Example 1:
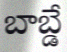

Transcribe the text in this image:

బాబ్డే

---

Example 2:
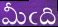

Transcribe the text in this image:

మీఁది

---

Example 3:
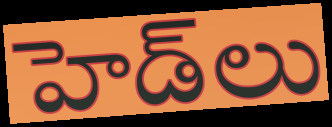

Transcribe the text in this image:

హెడ్‌లు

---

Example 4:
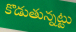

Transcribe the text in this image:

కొడుతున్నట్టు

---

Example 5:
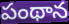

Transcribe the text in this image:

పంథాన